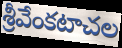
శ్రీవేంకటాచల